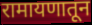
रामायणातून